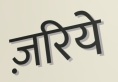
ज़रिये